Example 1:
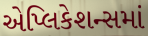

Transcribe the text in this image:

એપ્લિકેશન્સમાં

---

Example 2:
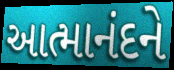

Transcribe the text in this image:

આત્માનંદને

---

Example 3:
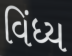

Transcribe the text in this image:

વિંધ્ય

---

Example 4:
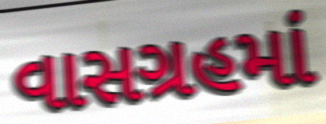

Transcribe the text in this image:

વાસગ્રહમાં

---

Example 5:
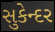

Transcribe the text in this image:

સુકેન્દર